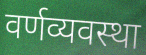
वर्णव्यवस्था